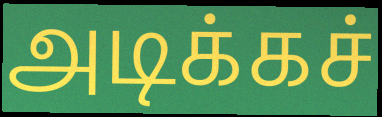
அடிக்கச்